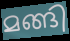
മങ്ങി